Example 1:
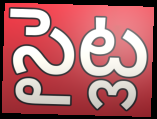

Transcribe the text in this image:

సైట్ల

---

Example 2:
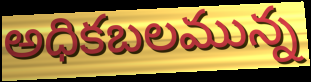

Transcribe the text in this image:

అధికబలమున్న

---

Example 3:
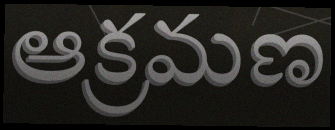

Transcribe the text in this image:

ఆక్రమణ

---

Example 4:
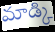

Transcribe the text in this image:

మాడ్కి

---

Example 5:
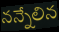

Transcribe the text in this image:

నన్నేలిన